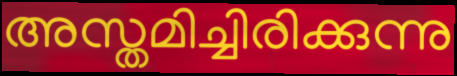
അസ്തമിച്ചിരിക്കുന്നു